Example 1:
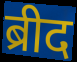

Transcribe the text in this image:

ब्रीद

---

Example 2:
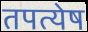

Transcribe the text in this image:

तपत्येष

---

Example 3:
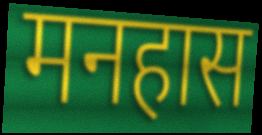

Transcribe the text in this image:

मनहास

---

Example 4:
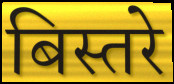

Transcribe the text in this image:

बिस्तरे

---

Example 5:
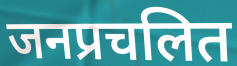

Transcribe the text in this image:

जनप्रचलित